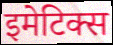
इमेटिक्स